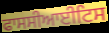
ਫਾਸਸੀਆਈਟਿਸ